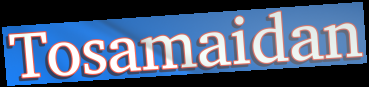
Tosamaidan